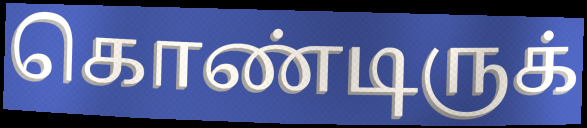
கொண்டிருக்